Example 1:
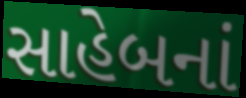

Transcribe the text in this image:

સાહેબનાં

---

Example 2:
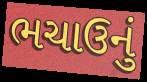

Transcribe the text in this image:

ભચાઉનું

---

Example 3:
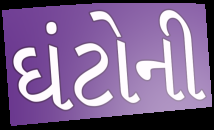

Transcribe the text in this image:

ઘંટોની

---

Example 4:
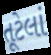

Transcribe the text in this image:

તૂટેલાં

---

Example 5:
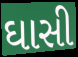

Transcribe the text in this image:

ઘાસી